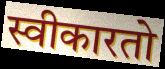
स्वीकारतो